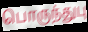
பொருந்துபு